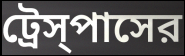
ট্রেস্‌পাসের